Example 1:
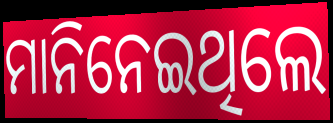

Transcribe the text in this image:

ମାନିନେଇଥିଲେ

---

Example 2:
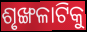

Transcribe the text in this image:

ଶୃଙ୍ଖଳାଟିକୁ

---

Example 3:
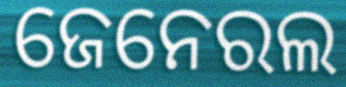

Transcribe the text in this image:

ଜେନେରଲ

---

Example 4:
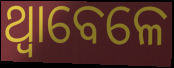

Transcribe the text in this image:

ଥ୍ବାବେଳେ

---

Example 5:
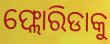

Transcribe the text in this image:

ଫ୍ଲୋରିଡାକୁ